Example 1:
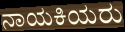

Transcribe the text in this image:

ನಾಯಕಿಯರು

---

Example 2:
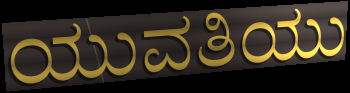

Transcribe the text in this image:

ಯುವತಿಯು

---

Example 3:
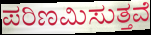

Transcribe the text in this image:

ಪರಿಣಮಿಸುತ್ತವೆ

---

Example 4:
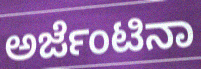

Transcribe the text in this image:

ಅರ್ಜೆಂಟಿನಾ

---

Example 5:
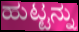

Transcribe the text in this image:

ಹುಟ್ಟನ್ನು